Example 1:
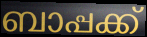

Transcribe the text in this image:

ബാപ്പക്ക്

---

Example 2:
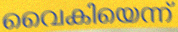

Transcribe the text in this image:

വൈകിയെന്ന്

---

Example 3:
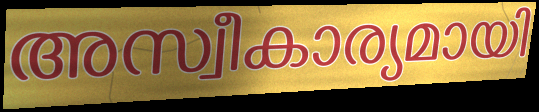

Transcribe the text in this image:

അസ്വീകാര്യമായി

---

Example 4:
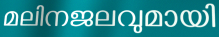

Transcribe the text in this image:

മലിനജലവുമായി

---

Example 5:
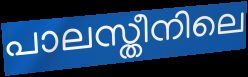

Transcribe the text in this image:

പാലസ്തീനിലെ